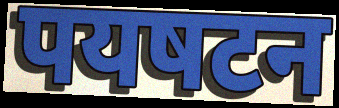
पयषटन